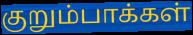
குறும்பாக்கள்